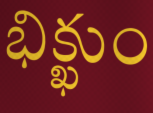
భిక్ఖుం